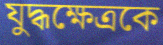
যুদ্ধক্ষেত্রকে